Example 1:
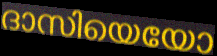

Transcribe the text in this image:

ദാസിയെയോ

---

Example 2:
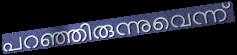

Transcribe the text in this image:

പറഞ്ഞിരുന്നുവെന്ന്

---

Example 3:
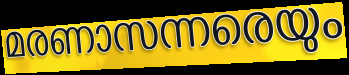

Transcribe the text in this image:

മരണാസന്നരെയും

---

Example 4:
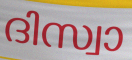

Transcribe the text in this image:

ദിസ്വാ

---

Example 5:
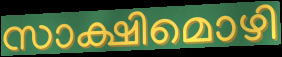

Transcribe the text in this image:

സാക്ഷിമൊഴി